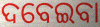
ଦବେଇବା